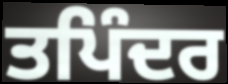
ਤਪਿੰਦਰ